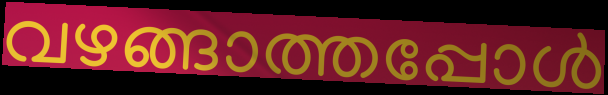
വഴങ്ങാത്തപ്പോൾ